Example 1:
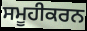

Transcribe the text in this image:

ਸਮੂਹੀਕਰਨ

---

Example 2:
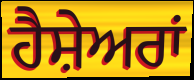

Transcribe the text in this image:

ਹੈਸ਼ੇਅਰਾਂ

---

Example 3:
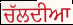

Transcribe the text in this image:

ਚੱਲਦੀਆ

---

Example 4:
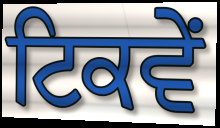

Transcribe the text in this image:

ਟਿਕਵੇਂ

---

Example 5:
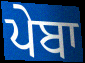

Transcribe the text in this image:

ਪੇਬਾ